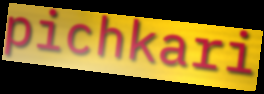
pichkari